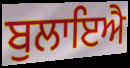
ਬੁਲਾਇਐ